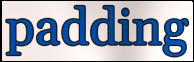
padding